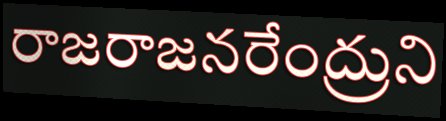
రాజరాజనరేంద్రుని